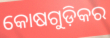
କୋଷଗୁଡ଼ିକର